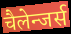
चैलेन्जर्स